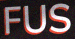
FUS